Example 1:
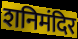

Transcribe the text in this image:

शनिमंदिर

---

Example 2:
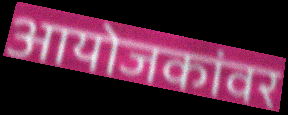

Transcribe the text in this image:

आयोजकांवर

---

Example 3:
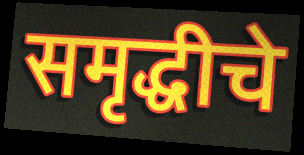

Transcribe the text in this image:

समृद्धीचे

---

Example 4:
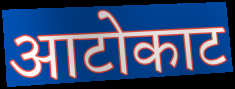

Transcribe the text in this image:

आटोकाट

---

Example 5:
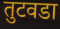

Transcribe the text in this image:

तुटवडा